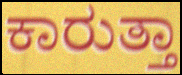
ಕಾರುತ್ತಾ